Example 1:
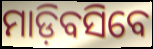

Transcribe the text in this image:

ମାଡ଼ିବସିବେ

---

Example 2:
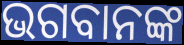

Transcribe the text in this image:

ଭଗବାନଙ୍କ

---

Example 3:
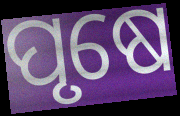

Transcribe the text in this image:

ପୃଷେ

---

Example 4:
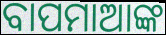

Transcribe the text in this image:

ବାପମାଆଙ୍କ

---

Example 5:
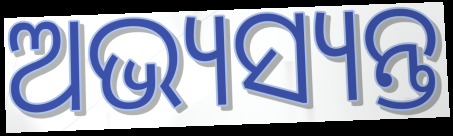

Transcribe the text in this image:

ଅଭ୍ୟସ୍ୟନ୍ତ